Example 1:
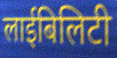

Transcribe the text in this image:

लाईबिलिटी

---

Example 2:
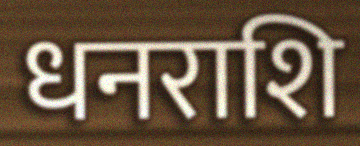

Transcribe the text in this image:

धनराशि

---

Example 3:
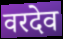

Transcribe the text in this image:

वरदेव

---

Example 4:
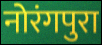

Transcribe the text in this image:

नोरंगपुरा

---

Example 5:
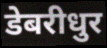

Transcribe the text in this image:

डेबरीधुर